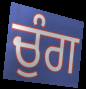
ਚੁੰਗ